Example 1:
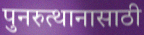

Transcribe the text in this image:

पुनरुत्थानासाठी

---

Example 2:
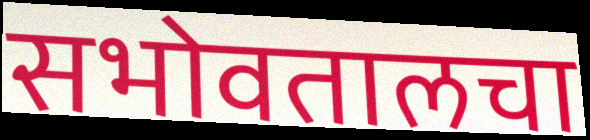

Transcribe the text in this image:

सभोवतालचा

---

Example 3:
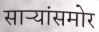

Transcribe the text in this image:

साऱ्यांसमोर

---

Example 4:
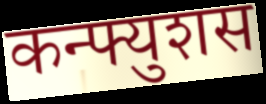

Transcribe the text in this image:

कन्फ्युशस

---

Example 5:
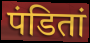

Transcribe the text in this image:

पंडितां